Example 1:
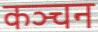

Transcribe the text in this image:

कञ्चन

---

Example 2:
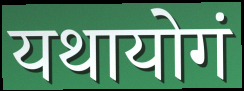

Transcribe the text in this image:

यथायोगं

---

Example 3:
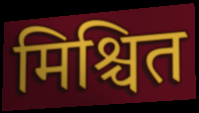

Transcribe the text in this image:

मिश्चित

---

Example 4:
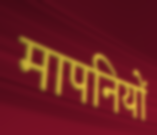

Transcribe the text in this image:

मापनियों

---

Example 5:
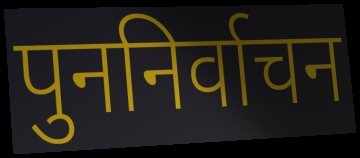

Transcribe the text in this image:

पुननिर्वाचन